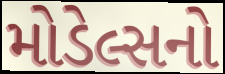
મોડેલ્સનો